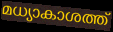
മധ്യാകാശത്ത്